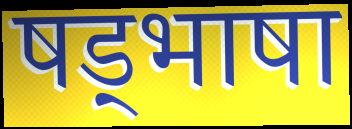
षड्भाषा